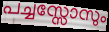
പച്ചസ്സോസും